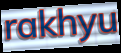
rakhyu